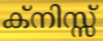
ക്നിസ്സ്